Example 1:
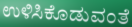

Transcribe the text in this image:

ಉಳಿಸಿಕೊಡುವಂತೆ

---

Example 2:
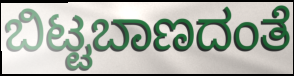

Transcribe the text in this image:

ಬಿಟ್ಟಬಾಣದಂತೆ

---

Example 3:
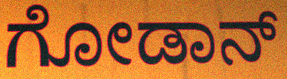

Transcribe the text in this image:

ಗೋಡಾನ್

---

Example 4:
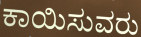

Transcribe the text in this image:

ಕಾಯಿಸುವರು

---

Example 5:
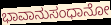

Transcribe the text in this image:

ಭಾವಾನುಸಂಧಾನೋ